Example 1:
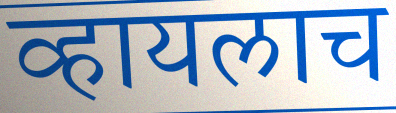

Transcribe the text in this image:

व्हायलाच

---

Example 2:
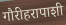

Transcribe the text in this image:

गौरीहरापाशी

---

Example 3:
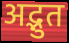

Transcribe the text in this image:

अद्भुत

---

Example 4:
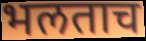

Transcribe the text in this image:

भलताच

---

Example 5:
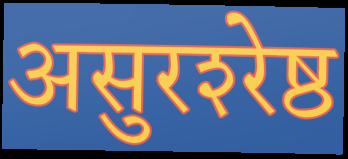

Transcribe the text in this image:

असुरश्रेष्ठ